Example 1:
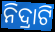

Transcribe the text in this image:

ନିଦ୍ରାଟି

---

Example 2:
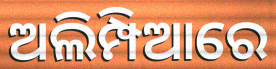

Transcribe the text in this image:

ଅଲିମ୍ପିଆରେ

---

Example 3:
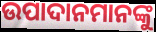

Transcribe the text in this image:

ଉପାଦାନମାନଙ୍କୁ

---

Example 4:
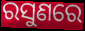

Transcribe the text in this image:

ରସୁଣରେ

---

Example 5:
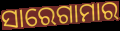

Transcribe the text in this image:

ସାରେଗାମାର